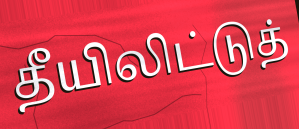
தீயிலிட்டுத்